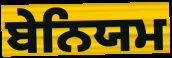
ਬੇਨਿਯਮ